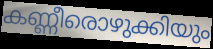
കണ്ണീരൊഴുക്കിയും